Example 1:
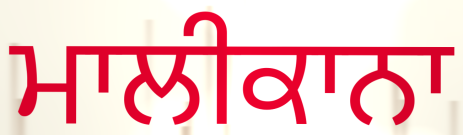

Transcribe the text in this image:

ਮਾਲੀਕਾਨਾ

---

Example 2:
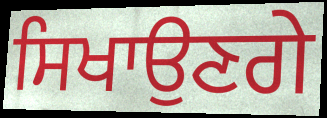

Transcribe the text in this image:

ਸਿਖਾਉਣਗੇ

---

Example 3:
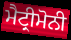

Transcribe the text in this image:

ਮੈਟ੍ਰੀਮੋਨੀ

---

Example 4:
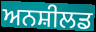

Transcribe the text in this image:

ਅਨਸ਼ੀਲਡ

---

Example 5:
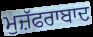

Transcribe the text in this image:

ਮੁਜ਼ੱਫਰਾਬਾਦ